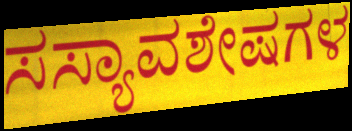
ಸಸ್ಯಾವಶೇಷಗಳ